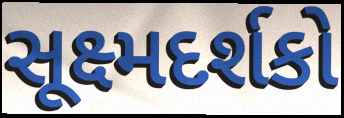
સૂક્ષ્મદર્શકો